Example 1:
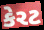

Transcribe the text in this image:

કેરટ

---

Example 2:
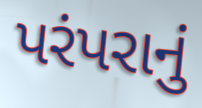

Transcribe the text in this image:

પરંપરાનું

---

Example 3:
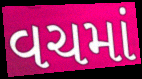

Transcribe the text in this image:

વચમાં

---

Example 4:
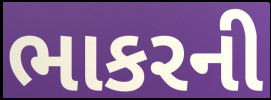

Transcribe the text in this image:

ભાકરની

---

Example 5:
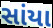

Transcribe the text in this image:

સાંયા